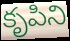
కృపిని